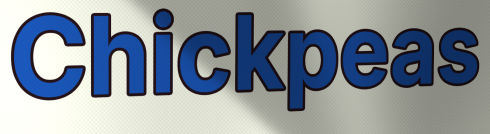
Chickpeas